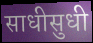
साधीसुधी